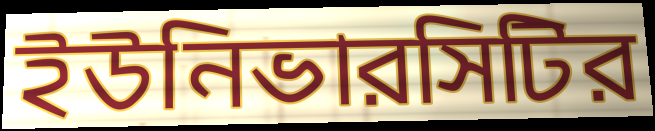
ইউনিভারসিটির